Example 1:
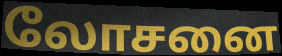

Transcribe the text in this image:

லோசனை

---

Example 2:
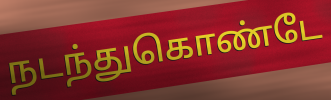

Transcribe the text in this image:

நடந்துகொண்டே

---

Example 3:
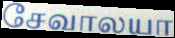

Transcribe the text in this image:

சேவாலயா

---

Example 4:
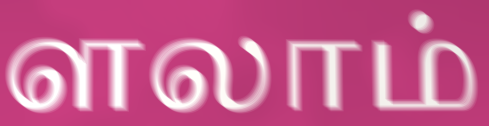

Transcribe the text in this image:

ளலாம்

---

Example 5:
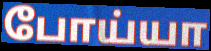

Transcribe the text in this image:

போய்யா